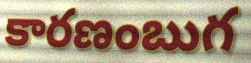
కారణంబుగ